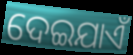
ଦେଇଯାଏଁ